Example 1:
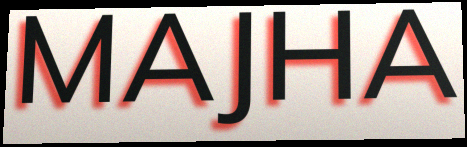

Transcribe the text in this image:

MAJHA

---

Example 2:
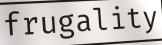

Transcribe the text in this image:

frugality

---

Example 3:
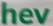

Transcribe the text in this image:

hev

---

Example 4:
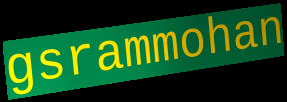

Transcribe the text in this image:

gsrammohan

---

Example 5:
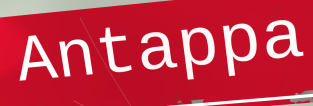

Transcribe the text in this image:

Antappa